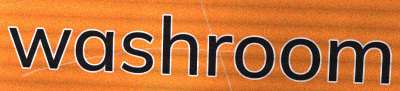
washroom